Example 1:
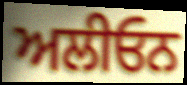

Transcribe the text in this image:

ਅਲੀਓਨ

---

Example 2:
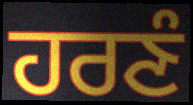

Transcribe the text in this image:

ਹਰਣੰ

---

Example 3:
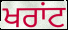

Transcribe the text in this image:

ਖਰਾਂਟ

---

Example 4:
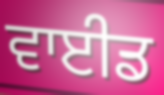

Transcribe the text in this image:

ਵਾਈਡ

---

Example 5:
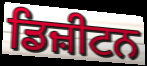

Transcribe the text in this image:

ਡਿਜ਼ੀਟਨ